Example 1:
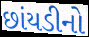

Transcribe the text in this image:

છાંયડીનો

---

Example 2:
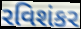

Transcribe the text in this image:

રવિશંકર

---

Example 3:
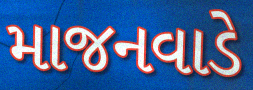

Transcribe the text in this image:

માજનવાડે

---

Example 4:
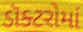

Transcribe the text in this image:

ડૉક્ટરોમાં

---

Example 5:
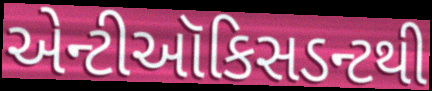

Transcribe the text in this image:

એન્ટીઑકિસડન્ટથી